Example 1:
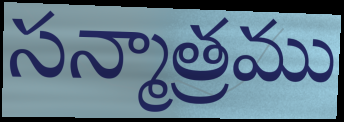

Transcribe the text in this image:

సన్మాత్రము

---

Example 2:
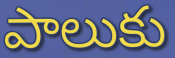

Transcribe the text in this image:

పాలుకు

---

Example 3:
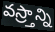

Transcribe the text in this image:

వస్ర్తాన్ని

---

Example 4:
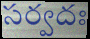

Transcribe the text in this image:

సర్వదః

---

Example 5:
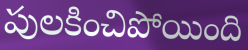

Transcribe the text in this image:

పులకించిపోయింది